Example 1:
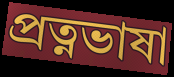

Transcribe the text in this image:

প্রত্নভাষা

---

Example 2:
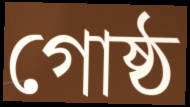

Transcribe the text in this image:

গোষ্ঠ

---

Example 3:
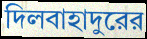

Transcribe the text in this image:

দিলবাহাদুরের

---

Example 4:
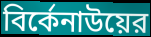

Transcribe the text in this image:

বির্কেনাউয়ের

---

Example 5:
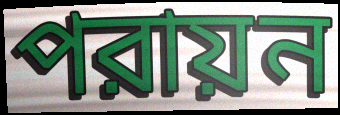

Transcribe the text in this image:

পরায়ন